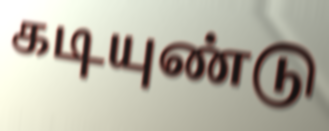
கடியுண்டு